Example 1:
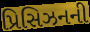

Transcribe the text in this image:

પ્રિસિઝનની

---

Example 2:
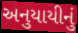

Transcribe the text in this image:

અનુયાયીનું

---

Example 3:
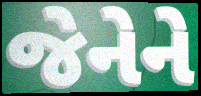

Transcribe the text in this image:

જેનેને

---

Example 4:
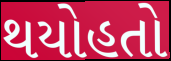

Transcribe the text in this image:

થયોહતો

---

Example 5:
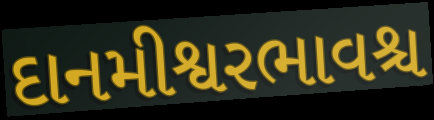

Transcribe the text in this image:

દાનમીશ્વરભાવશ્ચ